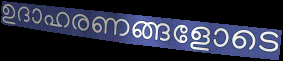
ഉദാഹരണങ്ങളോടെ